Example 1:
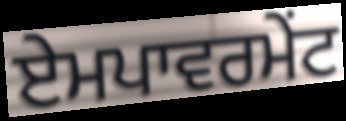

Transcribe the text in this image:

ਏਮਪਾਵਰਮੇਂਟ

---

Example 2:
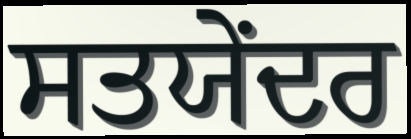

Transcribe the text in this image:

ਸਤਯੇਂਦਰ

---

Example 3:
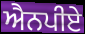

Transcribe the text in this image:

ਐਨਪੀਏ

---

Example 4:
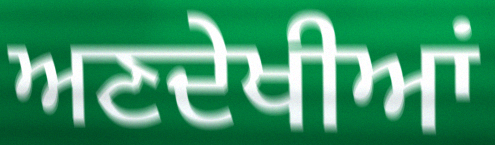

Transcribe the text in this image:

ਅਣਦੇਖੀਆਂ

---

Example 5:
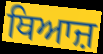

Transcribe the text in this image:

ਥਿਆਜ਼